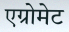
एग्रोमेट